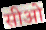
सीओ